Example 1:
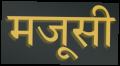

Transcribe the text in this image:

मजूसी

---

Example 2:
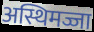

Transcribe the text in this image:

अस्थिमज्जा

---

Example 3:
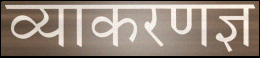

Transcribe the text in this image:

व्याकरणज्ञ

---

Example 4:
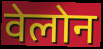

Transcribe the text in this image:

वेलोन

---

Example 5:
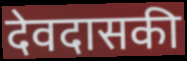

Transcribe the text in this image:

देवदासकी